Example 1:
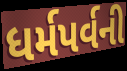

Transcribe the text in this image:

ધર્મપર્વની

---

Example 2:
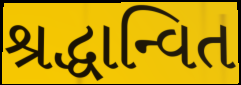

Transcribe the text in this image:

શ્રદ્ધાન્વિત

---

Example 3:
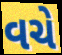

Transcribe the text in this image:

વચે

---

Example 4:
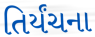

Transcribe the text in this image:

તિર્યંચના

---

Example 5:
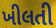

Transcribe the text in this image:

ખીલતી